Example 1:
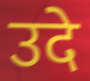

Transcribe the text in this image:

उदे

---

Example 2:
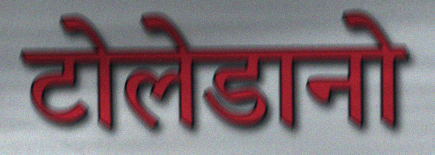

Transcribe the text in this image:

टोलेडानो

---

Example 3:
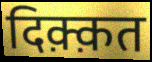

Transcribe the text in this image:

दिक़्क़त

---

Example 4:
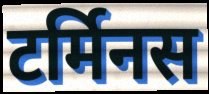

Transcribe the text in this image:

टर्मिनस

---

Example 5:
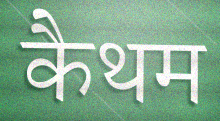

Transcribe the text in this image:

कैथम